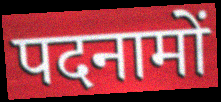
पदनामों